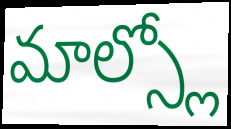
మాల్స్లో